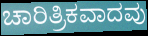
ಚಾರಿತ್ರಿಕವಾದವು